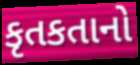
કૃતકતાનો